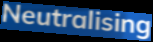
Neutralising